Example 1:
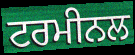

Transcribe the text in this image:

ਟਰਮੀਨਲ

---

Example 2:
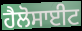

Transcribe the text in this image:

ਹੈਲੋਸਾਈਟ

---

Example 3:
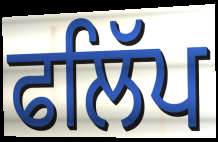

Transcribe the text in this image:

ਫਲਿੱਪ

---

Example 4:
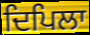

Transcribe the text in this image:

ਦਿਪਿਲਾ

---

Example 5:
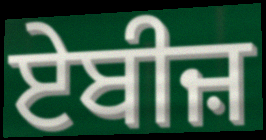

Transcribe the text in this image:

ਏਬੀਜ਼